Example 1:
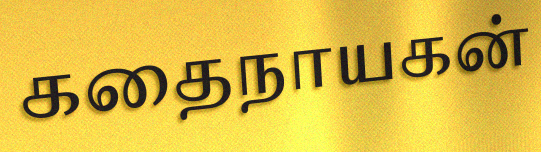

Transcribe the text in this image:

கதைநாயகன்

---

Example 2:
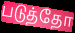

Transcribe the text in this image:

படுத்தோ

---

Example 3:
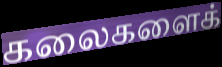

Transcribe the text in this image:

கலைகளைக்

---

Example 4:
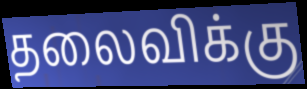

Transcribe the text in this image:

தலைவிக்கு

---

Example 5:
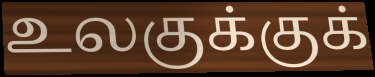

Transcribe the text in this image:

உலகுக்குக்